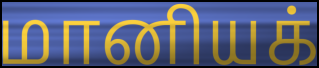
மானியக்